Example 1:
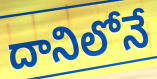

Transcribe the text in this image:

దానిలోనే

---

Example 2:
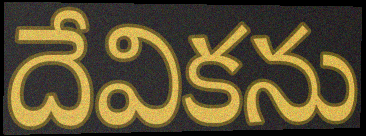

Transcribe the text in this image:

దేవికను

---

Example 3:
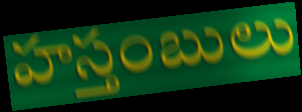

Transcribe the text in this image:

హస్తంబులు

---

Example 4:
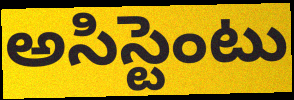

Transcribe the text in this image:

అసిస్టెంటు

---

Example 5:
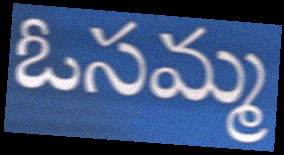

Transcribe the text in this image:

ఓసమ్మ